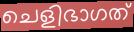
ചെളിഭാഗത്